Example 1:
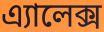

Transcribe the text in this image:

এ্যালেক্স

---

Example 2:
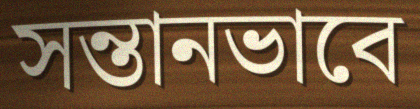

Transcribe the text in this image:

সন্তানভাবে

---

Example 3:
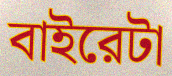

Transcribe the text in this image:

বাইরেটা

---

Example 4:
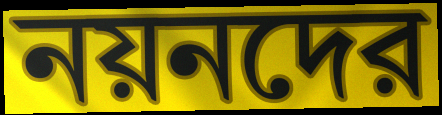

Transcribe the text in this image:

নয়নদের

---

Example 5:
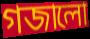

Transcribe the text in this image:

গজালো